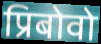
प्रिबोवो